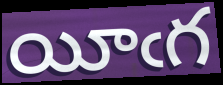
యీఁగ